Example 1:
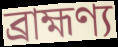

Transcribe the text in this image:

ব্রাহ্মণ্য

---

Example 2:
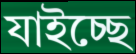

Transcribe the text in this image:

যাইচ্ছে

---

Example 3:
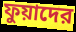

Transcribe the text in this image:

ফুয়াদের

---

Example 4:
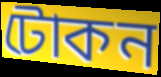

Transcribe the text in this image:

টোকন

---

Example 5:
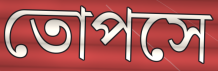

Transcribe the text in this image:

তোপসে